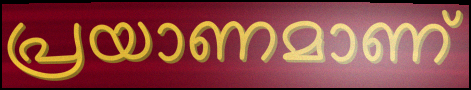
പ്രയാണമാണ്